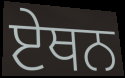
ਏਥਨ